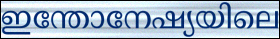
ഇന്തോനേഷ്യയിലെ